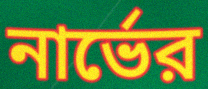
নার্ভের